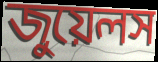
জুয়েলস